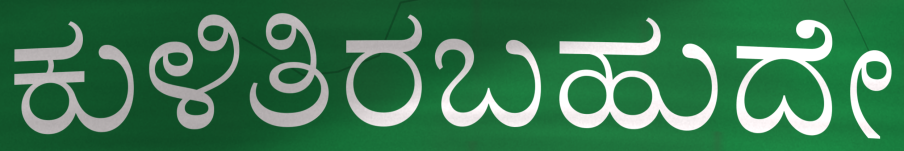
ಕುಳಿತಿರಬಹುದೇ